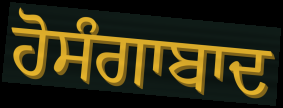
ਹੋਸੰਗਾਬਾਦ